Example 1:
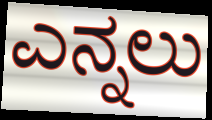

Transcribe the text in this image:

ಎನ್ನಲು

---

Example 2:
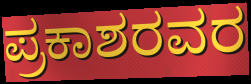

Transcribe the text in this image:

ಪ್ರಕಾಶರವರ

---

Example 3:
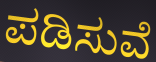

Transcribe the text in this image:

ಪಡಿಸುವೆ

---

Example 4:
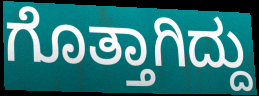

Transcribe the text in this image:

ಗೊತ್ತಾಗಿದ್ದು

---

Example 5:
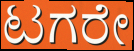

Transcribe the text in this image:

ಟಗರೇ